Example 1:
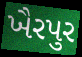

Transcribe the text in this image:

ખૈરપુર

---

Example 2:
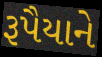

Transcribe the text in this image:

રૂપૈયાને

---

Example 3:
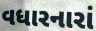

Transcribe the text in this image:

વધારનારાં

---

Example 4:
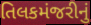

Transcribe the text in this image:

તિલકમંજરીનું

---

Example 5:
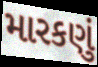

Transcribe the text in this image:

મારકણું